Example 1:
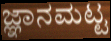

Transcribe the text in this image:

ಜ್ಞಾನಮಟ್ಟ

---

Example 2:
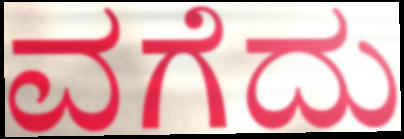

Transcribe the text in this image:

ವಗೆದು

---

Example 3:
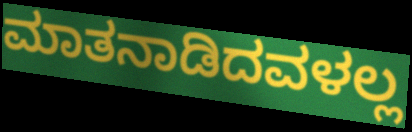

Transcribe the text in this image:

ಮಾತನಾಡಿದವಳಲ್ಲ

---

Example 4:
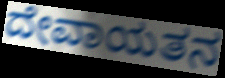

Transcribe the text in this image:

ದೇವಾಯತನ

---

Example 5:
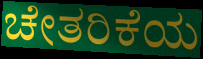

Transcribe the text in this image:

ಚೇತರಿಕೆಯ